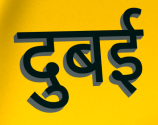
दुबई